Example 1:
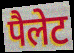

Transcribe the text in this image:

पैलेट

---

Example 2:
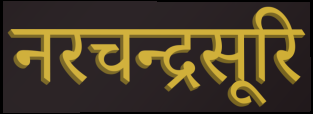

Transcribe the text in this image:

नरचन्द्रसूरि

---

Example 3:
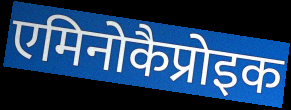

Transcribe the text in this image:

एमिनोकैप्रोइक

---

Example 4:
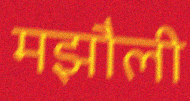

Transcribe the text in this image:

मझौली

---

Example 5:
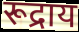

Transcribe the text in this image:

रूद्राय